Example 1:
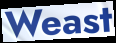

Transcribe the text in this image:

Weast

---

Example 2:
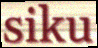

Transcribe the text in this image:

siku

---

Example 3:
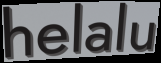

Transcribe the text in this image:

helalu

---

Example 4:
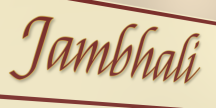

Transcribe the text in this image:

Jambhali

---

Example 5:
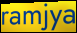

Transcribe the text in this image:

ramjya